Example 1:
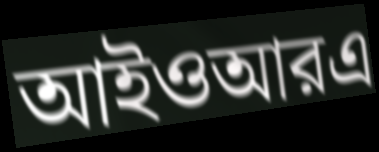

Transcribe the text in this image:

আইওআরএ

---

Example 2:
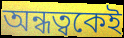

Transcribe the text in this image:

অন্ধত্বকেই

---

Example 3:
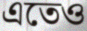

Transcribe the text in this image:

এতেও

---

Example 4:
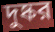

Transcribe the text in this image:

দুষ্কর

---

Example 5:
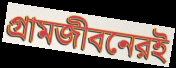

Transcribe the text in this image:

গ্রামজীবনেরই